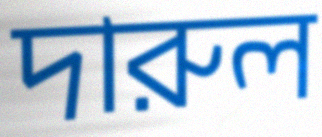
দারুল